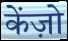
केंज़ो